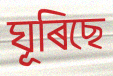
ঘূৰিছে